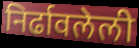
निर्ढावलेली